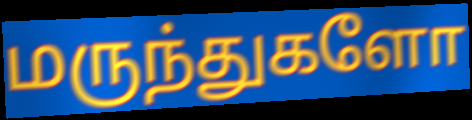
மருந்துகளோ